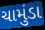
ચામુંડા